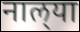
नाल्या